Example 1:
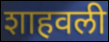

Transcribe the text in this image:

शाहवली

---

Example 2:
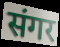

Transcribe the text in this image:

संगर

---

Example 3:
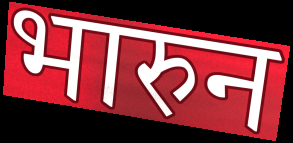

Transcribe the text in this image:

भारुन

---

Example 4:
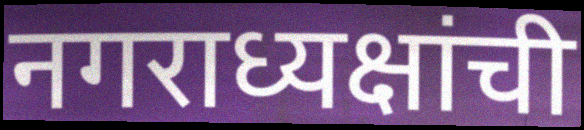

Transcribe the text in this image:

नगराध्यक्षांची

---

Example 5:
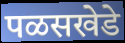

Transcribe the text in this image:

पळसखेडे